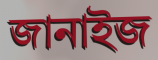
জানাইজ